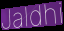
Jaldhi